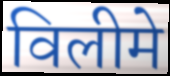
विलीमे